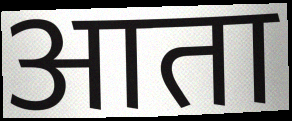
आता